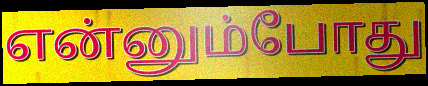
என்னும்போது